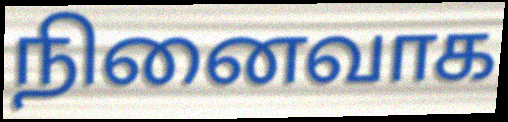
நினைவாக